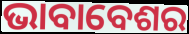
ଭାବାବେଶର